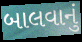
બાલવાનું